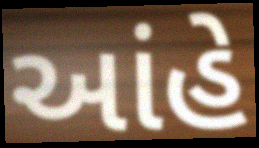
આંહે